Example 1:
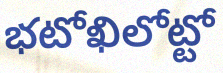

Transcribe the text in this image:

భటోఖిలోట్టో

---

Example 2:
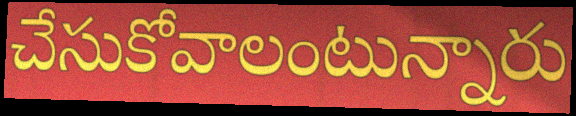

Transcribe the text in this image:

చేసుకోవాలంటున్నారు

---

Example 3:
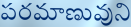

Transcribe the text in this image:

పరమాణువుని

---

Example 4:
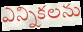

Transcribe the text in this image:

ఎన్నికలను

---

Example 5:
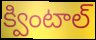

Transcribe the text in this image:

క్వింటాల్